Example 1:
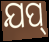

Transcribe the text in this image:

ଯପ୍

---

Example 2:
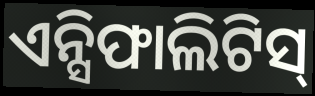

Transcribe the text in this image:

ଏନ୍ସିଫାଲିଟିସ୍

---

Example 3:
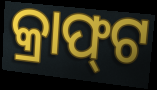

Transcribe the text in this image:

କ୍ରାଫ୍‌ଟ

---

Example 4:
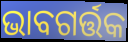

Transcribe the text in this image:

ଭାବଗର୍ତ୍ତକ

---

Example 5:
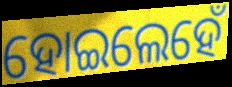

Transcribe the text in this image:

ହୋଇଲେହେଁ